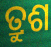
ତ୍ରୁଶ